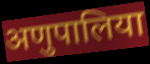
अणुपालिया